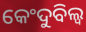
କେଂଦୁବିଲ୍ୱ